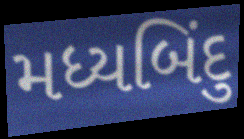
મધ્યબિંદુ